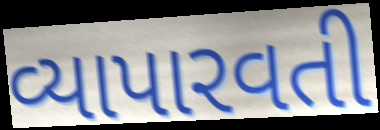
વ્યાપારવતી